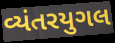
વ્યંતરયુગલ